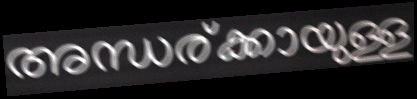
അന്ധര്ക്കായുള്ള